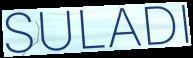
SULADI